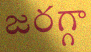
జరగ్గా